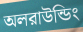
অলরাউন্ডিং